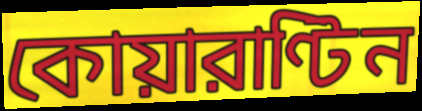
কোয়ারাণ্টিন